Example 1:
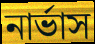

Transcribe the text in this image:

নার্ভাস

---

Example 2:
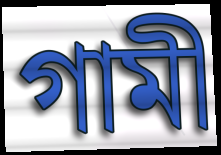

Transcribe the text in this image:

গামী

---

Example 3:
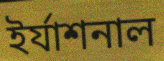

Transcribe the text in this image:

ইর্যাশনাল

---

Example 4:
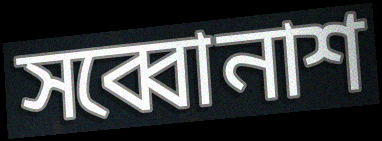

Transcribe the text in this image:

সব্বোনাশ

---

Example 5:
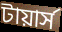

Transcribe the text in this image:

টায়ার্স